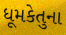
ધૂમકેતુના